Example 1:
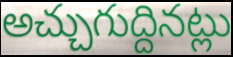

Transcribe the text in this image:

అచ్చుగుద్దినట్లు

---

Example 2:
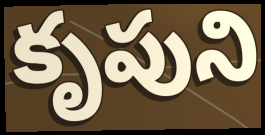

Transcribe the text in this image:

కృపుని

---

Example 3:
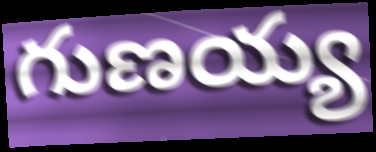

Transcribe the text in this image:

గుణయ్య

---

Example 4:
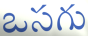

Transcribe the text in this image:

ఒసగు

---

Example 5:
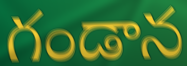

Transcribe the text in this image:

గండాన